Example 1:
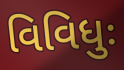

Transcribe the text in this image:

વિવિધુઃ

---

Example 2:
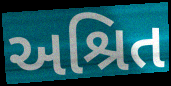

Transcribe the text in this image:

અશ્રિત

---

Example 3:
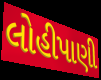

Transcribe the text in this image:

લોહીપાણી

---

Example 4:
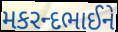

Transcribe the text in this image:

મકરન્દભાઈને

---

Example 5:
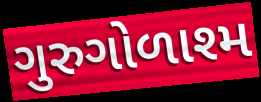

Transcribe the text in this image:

ગુરુગોળાશ્મ